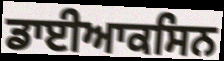
ਡਾਈਆਕਸਿਨ